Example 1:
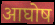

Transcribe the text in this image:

आघोष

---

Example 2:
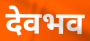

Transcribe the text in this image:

देवभव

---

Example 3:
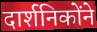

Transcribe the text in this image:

दार्शनिकोंने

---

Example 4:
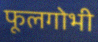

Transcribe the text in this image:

फूलगोभी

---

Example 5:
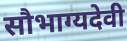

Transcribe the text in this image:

सौभाग्यदेवी